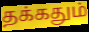
தக்கதும்